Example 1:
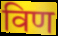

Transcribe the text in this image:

विण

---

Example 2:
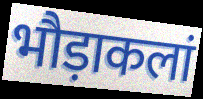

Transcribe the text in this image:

भौड़ाकलां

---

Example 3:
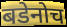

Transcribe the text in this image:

बडेनोच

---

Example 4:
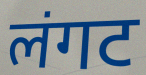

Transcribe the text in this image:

लंगट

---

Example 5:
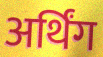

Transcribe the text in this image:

अर्थिंग